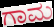
ಗಾಮ